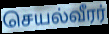
செயல்வீரர்